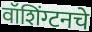
वॉशिंग्टनचे